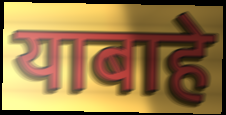
याबाहे